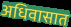
अधिवासात